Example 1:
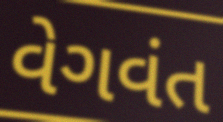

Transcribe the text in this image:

વેગવંત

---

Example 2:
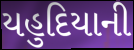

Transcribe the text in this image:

યહુદિયાની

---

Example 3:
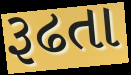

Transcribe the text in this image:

રૂઢતા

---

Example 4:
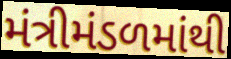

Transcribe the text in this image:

મંત્રીમંડળમાંથી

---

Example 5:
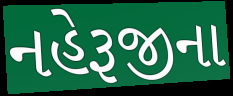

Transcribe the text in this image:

નહેરૂજીના